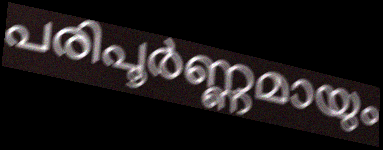
പരിപൂർണ്ണമായും